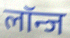
लॉन्ज